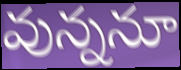
వున్ననూ